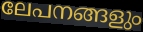
ലേപനങ്ങളും